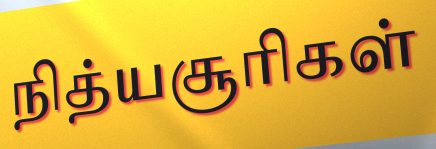
நித்யசூரிகள்